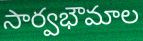
సార్వభౌమాల